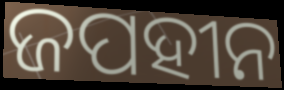
ଜପହୀନ